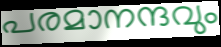
പരമാനന്ദവും